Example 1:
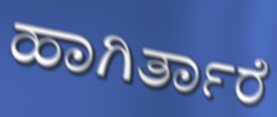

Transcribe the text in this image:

ಹಾಗಿರ್ತಾರೆ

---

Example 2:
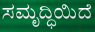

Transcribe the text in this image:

ಸಮೃದ್ಧಿಯಿದೆ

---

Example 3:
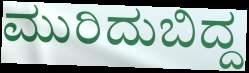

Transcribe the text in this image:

ಮುರಿದುಬಿದ್ದ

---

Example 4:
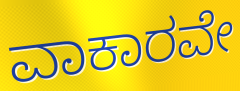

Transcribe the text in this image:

ವಾಕಾರವೇ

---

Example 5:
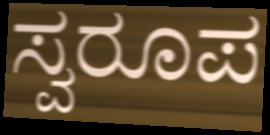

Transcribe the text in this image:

ಸ್ವರೂಪ